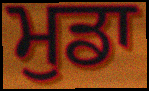
ਮੁਡਾ